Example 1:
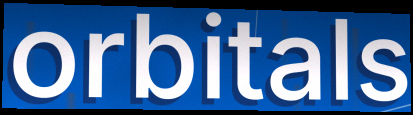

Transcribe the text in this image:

orbitals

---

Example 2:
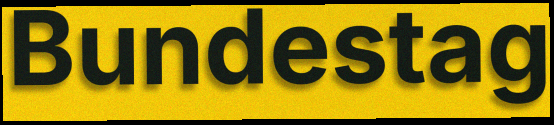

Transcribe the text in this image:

Bundestag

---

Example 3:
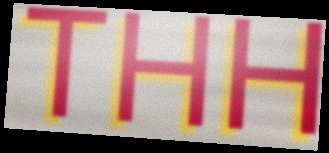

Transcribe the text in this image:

THH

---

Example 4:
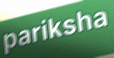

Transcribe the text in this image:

pariksha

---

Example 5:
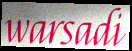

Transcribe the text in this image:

warsadi